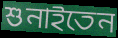
শুনাইতেন